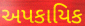
અપકાયિક